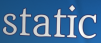
static